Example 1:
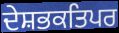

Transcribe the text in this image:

ਦੇਸ਼ਭਕਤਿਪਰ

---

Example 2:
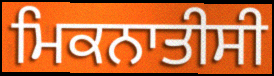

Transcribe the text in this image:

ਮਿਕਨਾਤੀਸੀ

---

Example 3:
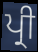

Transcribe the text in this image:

ਪ੍ਰੀ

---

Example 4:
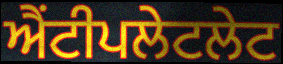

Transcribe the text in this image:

ਐਂਟੀਪਲੇਟਲੇਟ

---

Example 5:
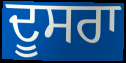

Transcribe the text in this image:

ਦੂਸਰਾ